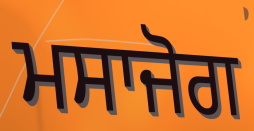
ਮਸਾਜੋਗ